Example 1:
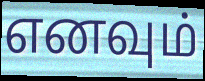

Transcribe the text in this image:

எனவும்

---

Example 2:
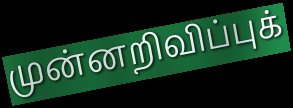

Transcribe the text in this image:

முன்னறிவிப்புக்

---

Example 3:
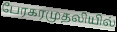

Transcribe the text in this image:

பேரகரமுதலியில்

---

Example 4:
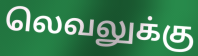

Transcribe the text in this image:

லெவலுக்கு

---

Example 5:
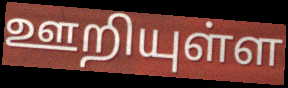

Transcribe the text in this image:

ஊறியுள்ள